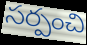
సర్పంచి